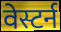
वेस्टर्न